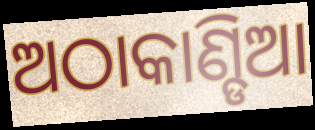
ଅଠାକାଣ୍ଡିଆ